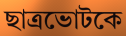
ছাত্রভোটকে